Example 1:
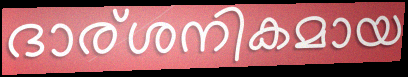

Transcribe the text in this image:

ദാര്ശനികമായ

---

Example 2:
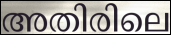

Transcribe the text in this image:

അതിരിലെ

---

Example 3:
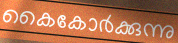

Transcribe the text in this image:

കൈകോർക്കുന്നു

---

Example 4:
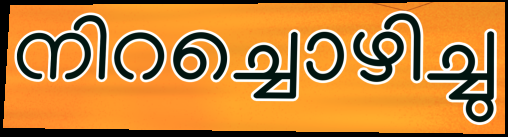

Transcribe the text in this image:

നിറച്ചൊഴിച്ചു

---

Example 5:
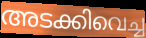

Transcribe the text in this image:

അടക്കിവെച്ച